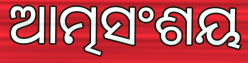
ଆତ୍ମସଂଶୟ